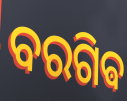
ବରଗିଵ